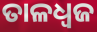
ତାଳଧ୍ୱଜ